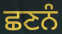
ਛਣਨੰ